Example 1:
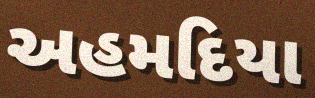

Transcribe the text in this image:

અહમદિયા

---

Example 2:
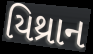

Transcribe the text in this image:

યિથ્રાન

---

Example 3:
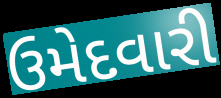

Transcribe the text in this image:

ઉમેદવારી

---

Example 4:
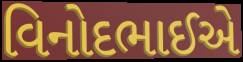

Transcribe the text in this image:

વિનોદભાઈએ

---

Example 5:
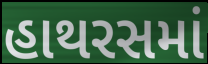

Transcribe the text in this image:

હાથરસમાં